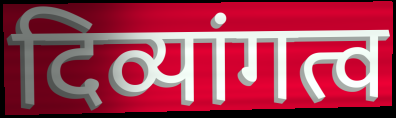
दिव्यांगत्व